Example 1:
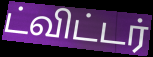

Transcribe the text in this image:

ட்விட்டர்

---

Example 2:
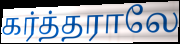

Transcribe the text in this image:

கர்த்தராலே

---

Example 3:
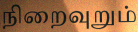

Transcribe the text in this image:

நிறைவுறும்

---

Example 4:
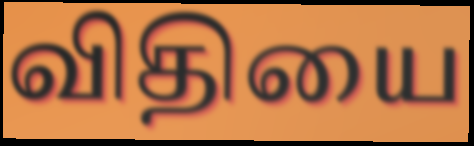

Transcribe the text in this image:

விதியை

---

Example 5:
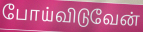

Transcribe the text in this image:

போய்விடுவேன்